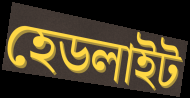
হেডলাইট